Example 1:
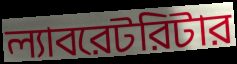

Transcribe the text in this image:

ল্যাবরেটরিটার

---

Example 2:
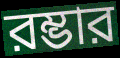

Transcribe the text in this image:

রম্ভার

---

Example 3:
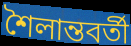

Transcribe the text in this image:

শৈলান্তবর্তী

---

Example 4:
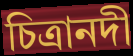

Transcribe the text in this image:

চিত্রানদী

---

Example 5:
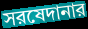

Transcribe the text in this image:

সরষেদানার